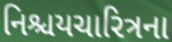
નિશ્ચયચારિત્રના